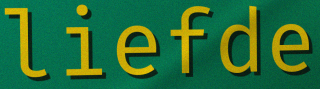
liefde